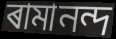
ৰামানন্দ